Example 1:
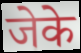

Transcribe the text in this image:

जेके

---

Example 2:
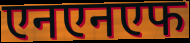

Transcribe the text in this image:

एनएनएफ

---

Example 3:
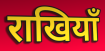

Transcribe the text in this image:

राखियाँ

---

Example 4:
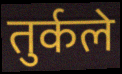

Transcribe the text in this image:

तुर्कले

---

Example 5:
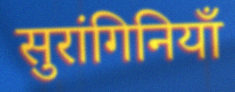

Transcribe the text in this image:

सुरांगिनियाँ